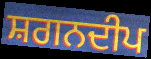
ਸ਼ਗਨਦੀਪ